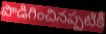
పొడిగించినప్పటికీ